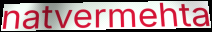
natvermehta